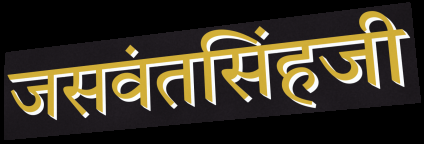
जसवंतसिंहजी